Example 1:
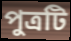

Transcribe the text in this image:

পুত্রটি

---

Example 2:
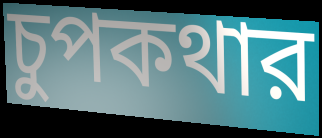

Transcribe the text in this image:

চুপকথার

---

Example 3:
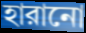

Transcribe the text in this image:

হারানো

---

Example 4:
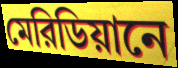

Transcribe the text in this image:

মেরিডিয়ানে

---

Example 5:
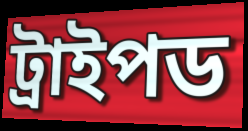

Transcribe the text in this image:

ট্রাইপড